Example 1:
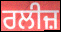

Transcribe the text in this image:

ਰਲੀਜ਼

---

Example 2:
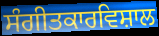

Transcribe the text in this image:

ਸੰਗੀਤਕਾਰਵਿਸ਼ਾਲ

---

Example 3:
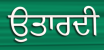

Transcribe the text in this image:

ਉਤਾਰਦੀ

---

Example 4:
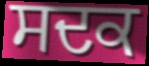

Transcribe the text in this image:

ਸਦਕ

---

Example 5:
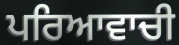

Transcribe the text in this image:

ਪਰਿਆਵਾਚੀ